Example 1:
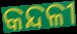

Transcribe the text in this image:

କନ୍ଦଳୀ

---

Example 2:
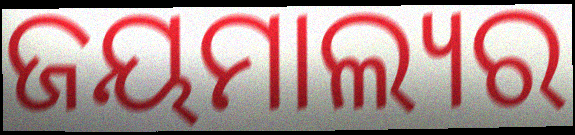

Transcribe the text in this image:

ଜୟମାଲ୍ୟର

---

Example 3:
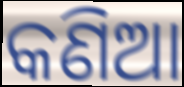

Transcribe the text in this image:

କଣିଆ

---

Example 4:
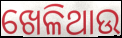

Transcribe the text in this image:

ଖେଳିଥାଉ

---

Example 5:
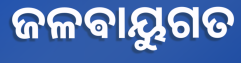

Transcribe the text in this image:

ଜଳଵାୟୁଗତ